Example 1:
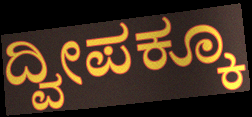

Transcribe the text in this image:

ದ್ವೀಪಕ್ಕೂ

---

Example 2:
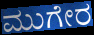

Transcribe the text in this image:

ಮುಗೇರ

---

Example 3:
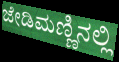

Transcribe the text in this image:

ಜೇಡಿಮಣ್ಣಿನಲ್ಲಿ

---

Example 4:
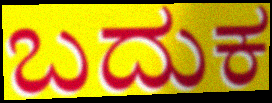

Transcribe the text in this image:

ಬದುಕ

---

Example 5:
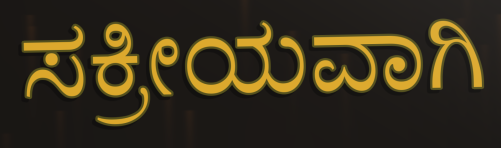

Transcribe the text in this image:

ಸಕ್ರೀಯವಾಗಿ